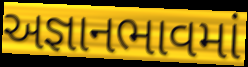
અજ્ઞાનભાવમાં